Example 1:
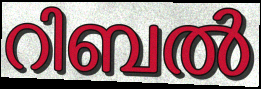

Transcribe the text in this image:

റിബൽ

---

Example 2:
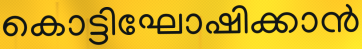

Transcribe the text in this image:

കൊട്ടിഘോഷിക്കാൻ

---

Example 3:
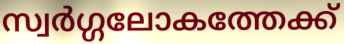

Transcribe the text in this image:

സ്വർഗ്ഗലോകത്തേക്ക്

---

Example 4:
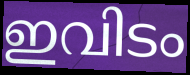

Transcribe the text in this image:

ഇവിടം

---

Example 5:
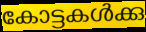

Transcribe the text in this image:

കോട്ടകൾക്കു